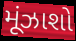
મૂંઝાશો